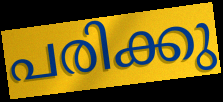
പരിക്കു